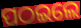
ପଠଇଲେ